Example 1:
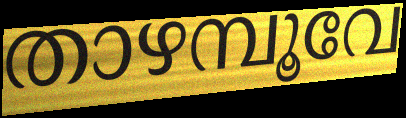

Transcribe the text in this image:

താഴമ്പൂവേ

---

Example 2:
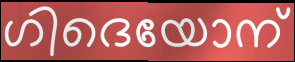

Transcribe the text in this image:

ഗിദെയോന്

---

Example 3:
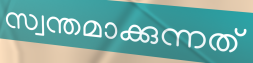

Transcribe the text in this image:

സ്വന്തമാക്കുന്നത്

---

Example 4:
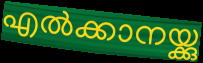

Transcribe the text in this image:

എൽക്കാനയ്ക്കു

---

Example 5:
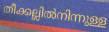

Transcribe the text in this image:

തീക്കല്ലിൽനിന്നുള്ള